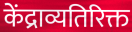
केंद्राव्यतिरिक्त